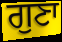
ਗੁਣਾ